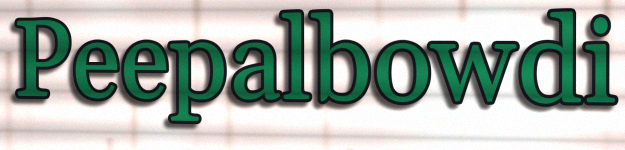
Peepalbowdi